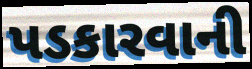
પડકારવાની